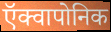
ऍक्वापोनिक